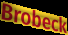
Brobeck